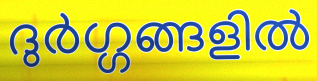
ദുർഗ്ഗങ്ങളിൽ